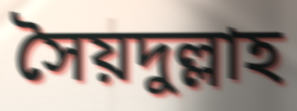
সৈয়দুল্লাহ